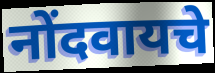
नोंदवायचे